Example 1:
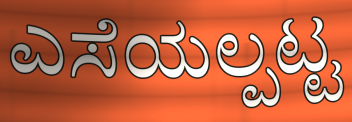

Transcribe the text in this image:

ಎಸೆಯಲ್ಪಟ್ಟ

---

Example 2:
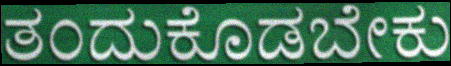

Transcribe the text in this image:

ತಂದುಕೊಡಬೇಕು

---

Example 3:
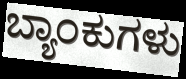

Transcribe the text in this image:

ಬ್ಯಾಂಕುಗಳು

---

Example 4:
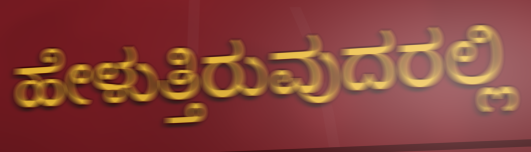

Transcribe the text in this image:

ಹೇಳುತ್ತಿರುವುದರಲ್ಲಿ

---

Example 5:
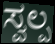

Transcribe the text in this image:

ಸ್ವಲ್ಪ